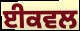
ਈਕਵਲ